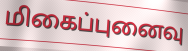
மிகைப்புனைவு